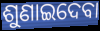
ଶୁଣାଇଦେବା